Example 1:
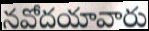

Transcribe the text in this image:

నవోదయావారు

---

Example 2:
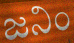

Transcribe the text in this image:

జనిం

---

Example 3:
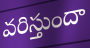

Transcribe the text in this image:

వరిస్తుందా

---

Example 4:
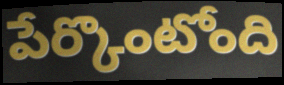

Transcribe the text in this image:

పేర్కొంటోంది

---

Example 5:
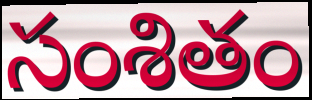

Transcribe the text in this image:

సంశితం